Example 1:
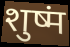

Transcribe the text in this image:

शुष्मं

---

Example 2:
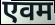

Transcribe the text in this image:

एवम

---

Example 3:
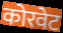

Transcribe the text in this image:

कोरवेट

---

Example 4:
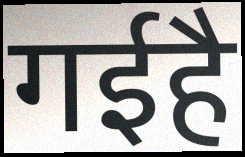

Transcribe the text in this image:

गईहै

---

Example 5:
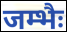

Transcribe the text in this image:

जम्भैः